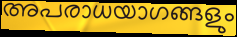
അപരാധയാഗങ്ങളും